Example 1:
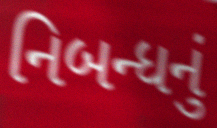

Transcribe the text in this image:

નિબન્ધનું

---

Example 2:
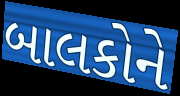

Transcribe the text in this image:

બાલકોને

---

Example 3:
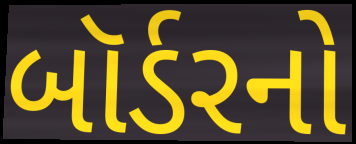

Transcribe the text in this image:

બૉર્ડરનો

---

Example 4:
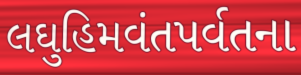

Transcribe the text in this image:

લઘુહિમવંતપર્વતના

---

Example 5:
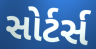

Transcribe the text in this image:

સોર્ટર્સ